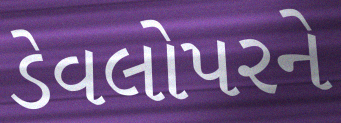
ડેવલોપરને